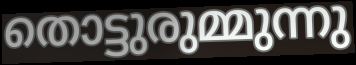
തൊട്ടുരുമ്മുന്നു